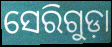
ସେରିଗୁଡ଼ା